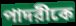
পাদরীকে